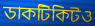
ডাকটিকিটও